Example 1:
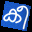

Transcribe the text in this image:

കീ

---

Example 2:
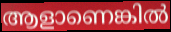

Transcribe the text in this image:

ആളാണെങ്കിൽ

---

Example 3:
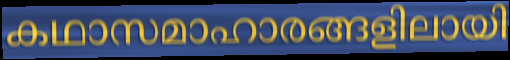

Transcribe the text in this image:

കഥാസമാഹാരങ്ങളിലായി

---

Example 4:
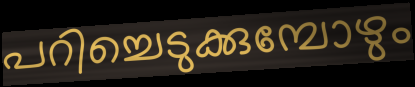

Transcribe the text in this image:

പറിച്ചെടുക്കുമ്പോഴും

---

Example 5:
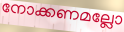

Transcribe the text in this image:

നോക്കണമല്ലോ